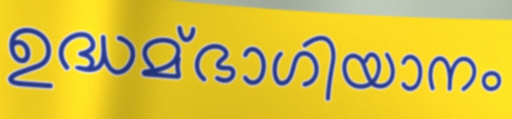
ഉദ്ധമ്ഭാഗിയാനം